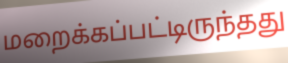
மறைக்கப்பட்டிருந்தது